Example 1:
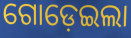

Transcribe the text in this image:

ଗୋଡ଼େଇଲା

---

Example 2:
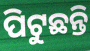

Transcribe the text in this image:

ପିଟୁଛନ୍ତି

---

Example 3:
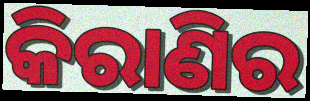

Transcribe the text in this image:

କିରାଣିର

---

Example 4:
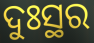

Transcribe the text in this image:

ଦୁଃସ୍ଥର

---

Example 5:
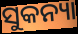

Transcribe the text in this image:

ସୁକନ୍ୟା